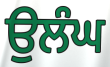
ਉਲੰਘ